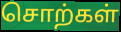
சொற்கள்